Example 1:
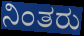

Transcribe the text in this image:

ನಿಂತರು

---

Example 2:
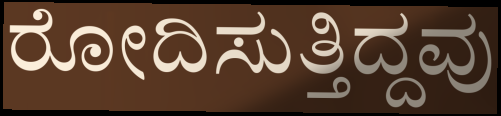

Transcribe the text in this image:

ರೋದಿಸುತ್ತಿದ್ದವು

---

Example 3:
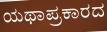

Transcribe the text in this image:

ಯಥಾಪ್ರಕಾರದ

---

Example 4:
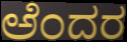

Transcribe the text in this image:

ಅೆಂದರ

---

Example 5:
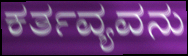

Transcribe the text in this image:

ಕರ್ತವ್ಯವನು